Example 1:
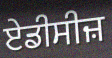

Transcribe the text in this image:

ਏਡੀਸੀਜ਼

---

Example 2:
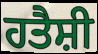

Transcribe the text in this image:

ਹਤੈਸ਼ੀ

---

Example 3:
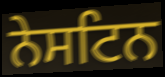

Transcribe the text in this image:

ਨੇਸਟਿਨ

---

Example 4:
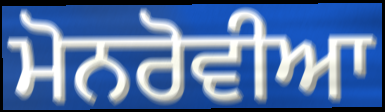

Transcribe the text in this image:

ਮੋਨਰੋਵੀਆ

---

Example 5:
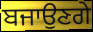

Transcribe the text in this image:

ਬਜਾਉਣਗੇ